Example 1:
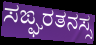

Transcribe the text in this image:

ಸಙ್ಘರತನಸ್ಸ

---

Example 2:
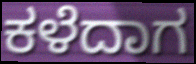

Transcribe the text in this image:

ಕಳೆದಾಗ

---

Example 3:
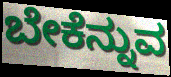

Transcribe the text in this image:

ಬೇಕೆನ್ನುವ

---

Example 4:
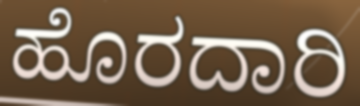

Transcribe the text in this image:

ಹೊರದಾರಿ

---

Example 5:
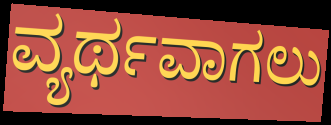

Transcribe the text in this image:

ವ್ಯರ್ಥವಾಗಲು